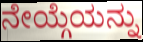
ನೇಯ್ಗೆಯನ್ನು